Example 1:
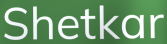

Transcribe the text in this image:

Shetkar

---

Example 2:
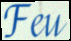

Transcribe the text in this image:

Feu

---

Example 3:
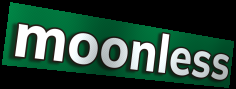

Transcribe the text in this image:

moonless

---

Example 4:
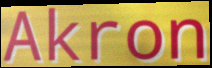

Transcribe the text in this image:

Akron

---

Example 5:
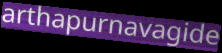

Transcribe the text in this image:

arthapurnavagide